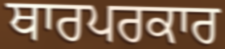
ਥਾਰਪਰਕਾਰ